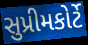
સુપ્રીમકોર્ટે